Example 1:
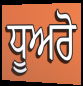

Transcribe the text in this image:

ਧੂਅਰੋ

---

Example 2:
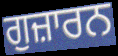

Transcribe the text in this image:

ਗੁਜ਼ਾਰਨ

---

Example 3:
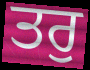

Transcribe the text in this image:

ਤਰੁ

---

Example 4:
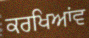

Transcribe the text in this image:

ਕਰਖਿਆਂਵ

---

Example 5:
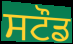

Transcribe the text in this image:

ਸਟੌਡ